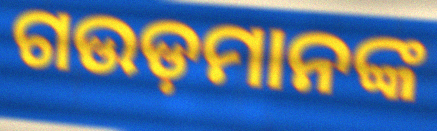
ଗଉଡ଼ମାନଙ୍କ